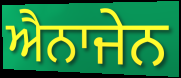
ਐਨਾਜੇਨ